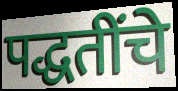
पद्धतींचे